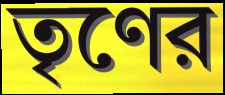
তৃণের